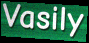
Vasily